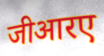
जीआरए